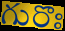
గురొః